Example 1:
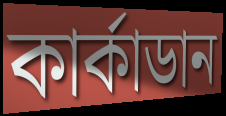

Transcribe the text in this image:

কাৰ্কাডান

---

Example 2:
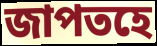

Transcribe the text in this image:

জাপতহে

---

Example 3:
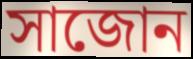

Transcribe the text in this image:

সাজোন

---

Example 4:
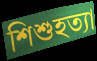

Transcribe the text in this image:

শিশুহত্যা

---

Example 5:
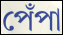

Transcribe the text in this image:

পেঁপা